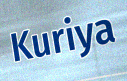
Kuriya